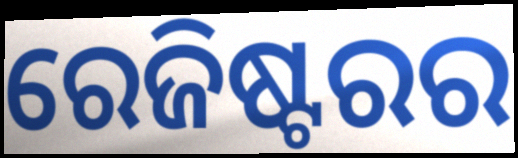
ରେଜିଷ୍ଟରର